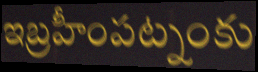
ఇబ్రహీంపట్నంకు